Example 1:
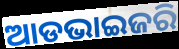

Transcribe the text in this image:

ଆଡଭାଇଜରି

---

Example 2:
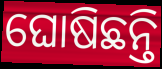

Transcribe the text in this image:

ଘୋଷିଛନ୍ତି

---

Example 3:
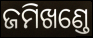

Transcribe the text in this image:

ଜମିଖଣ୍ଡେ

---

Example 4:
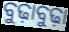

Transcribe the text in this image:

ବୁଢ଼ାବୁଢ଼ା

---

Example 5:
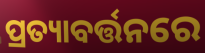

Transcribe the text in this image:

ପ୍ରତ୍ୟାବର୍ତ୍ତନରେ